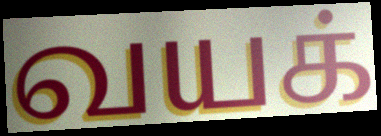
வயக்